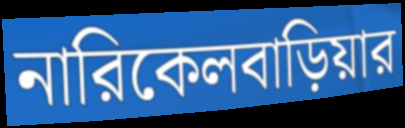
নারিকেলবাড়িয়ার